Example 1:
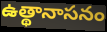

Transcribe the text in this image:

ఉత్థానాసనం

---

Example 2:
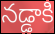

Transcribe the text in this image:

నడ్డాకి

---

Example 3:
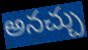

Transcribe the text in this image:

అనచ్చు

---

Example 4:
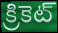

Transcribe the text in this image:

క్రికెట్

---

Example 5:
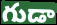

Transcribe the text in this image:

గుడా